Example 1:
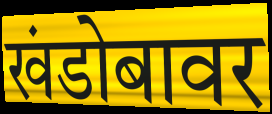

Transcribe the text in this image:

खंडोबावर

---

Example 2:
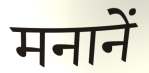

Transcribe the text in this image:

मनानें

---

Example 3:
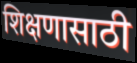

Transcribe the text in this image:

शिक्षणासाठी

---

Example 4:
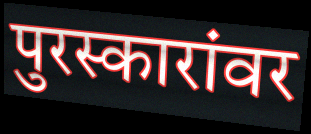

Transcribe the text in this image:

पुरस्कारांवर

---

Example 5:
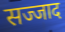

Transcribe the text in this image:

सज्जाद